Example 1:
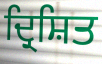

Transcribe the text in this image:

ਦ੍ਰਿਸ਼ਿਤ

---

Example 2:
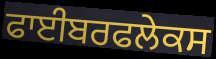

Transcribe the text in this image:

ਫਾਈਬਰਫਲੇਕਸ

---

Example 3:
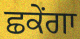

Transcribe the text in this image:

ਛਕੇਂਗਾ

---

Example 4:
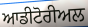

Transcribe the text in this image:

ਆਡੀਟੋਰੀਅਲ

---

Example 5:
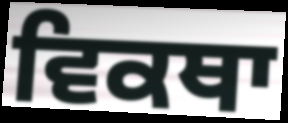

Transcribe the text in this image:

ਵਿਕਥਾ